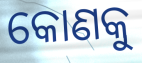
କୋଣକୁ